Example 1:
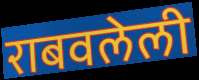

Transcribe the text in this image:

राबवलेली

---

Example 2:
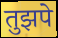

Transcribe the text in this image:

तुझपे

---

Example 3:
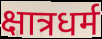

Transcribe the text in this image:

क्षात्रधर्म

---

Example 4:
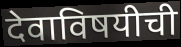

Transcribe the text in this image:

देवाविषयीची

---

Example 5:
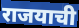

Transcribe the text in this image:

राजयाची